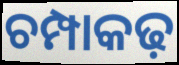
ଚମ୍ପାକଢ଼